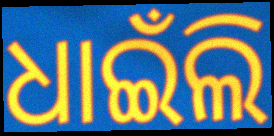
ଧାଇଁଲି